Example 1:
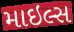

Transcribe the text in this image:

માઇલ્સ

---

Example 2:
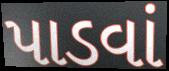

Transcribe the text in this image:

પાડવાં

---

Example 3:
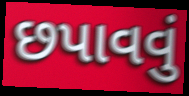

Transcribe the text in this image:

છપાવવું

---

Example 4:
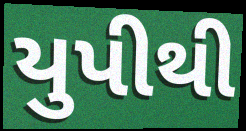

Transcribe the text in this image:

યુપીથી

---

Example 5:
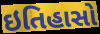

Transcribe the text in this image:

ઇતિહાસો